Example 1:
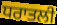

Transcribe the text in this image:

ਧਰਾਤਲੀ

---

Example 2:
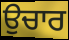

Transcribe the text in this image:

ਉਚਾਰ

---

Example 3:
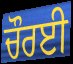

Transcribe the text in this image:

ਚੌਰਈ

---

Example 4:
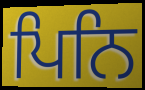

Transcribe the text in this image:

ਪਿਨਿ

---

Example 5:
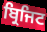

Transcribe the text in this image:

ਬ੍ਰਿਜਿਟ